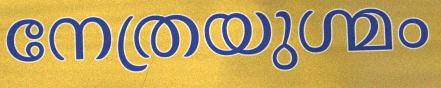
നേത്രയുഗ്മം